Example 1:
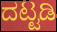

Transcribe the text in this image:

ದಟ್ಟಡಿ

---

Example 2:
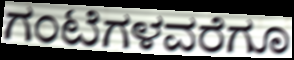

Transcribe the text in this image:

ಗಂಟೆಗಳವರೆಗೂ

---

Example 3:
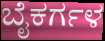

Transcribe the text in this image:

ಬೈಕರ್ಗಳ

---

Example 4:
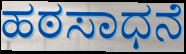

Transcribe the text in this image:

ಹಠಸಾಧನೆ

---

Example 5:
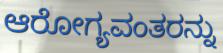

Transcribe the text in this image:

ಆರೋಗ್ಯವಂತರನ್ನು